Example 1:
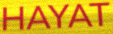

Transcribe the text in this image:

HAYAT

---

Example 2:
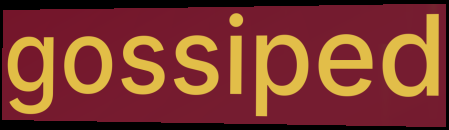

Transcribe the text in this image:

gossiped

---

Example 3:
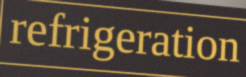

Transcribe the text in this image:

refrigeration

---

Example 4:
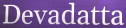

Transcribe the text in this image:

Devadatta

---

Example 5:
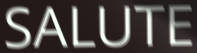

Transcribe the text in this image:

SALUTE